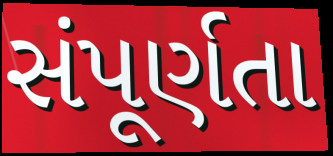
સંપૂર્ણતા